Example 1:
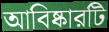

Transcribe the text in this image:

আবিষ্কারটি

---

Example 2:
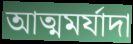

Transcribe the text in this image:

আত্মমর্যাদা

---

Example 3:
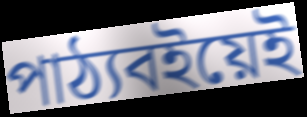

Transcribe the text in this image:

পাঠ্যবইয়েই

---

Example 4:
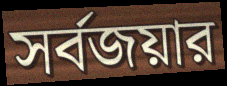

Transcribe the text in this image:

সর্বজয়ার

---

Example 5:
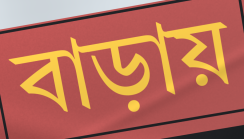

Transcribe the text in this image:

বাড়ায়